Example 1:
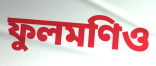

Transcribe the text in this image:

ফুলমণিও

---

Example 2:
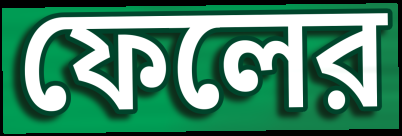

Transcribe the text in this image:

ফেলের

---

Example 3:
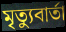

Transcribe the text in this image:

মৃত্যুবার্তা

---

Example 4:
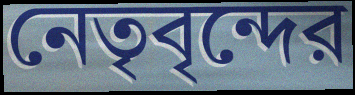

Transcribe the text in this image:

নেতৃবৃন্দের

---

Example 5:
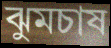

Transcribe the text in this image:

ঝুমচাষ